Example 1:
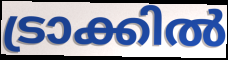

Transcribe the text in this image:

ട്രാക്കിൽ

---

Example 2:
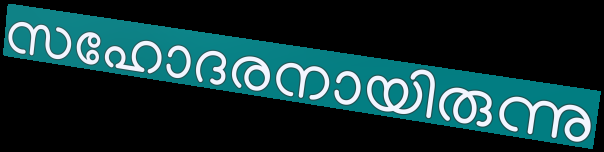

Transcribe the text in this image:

സഹോദരനായിരുന്നു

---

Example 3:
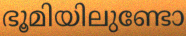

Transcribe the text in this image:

ഭൂമിയിലുണ്ടോ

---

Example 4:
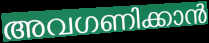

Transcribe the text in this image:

അവഗണിക്കാൻ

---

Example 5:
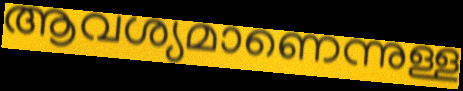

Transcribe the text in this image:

ആവശ്യമാണെന്നുള്ള